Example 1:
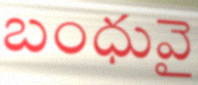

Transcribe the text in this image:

బంధువై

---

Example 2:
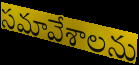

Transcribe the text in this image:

సమావేశాలను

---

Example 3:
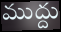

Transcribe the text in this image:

ముద్దు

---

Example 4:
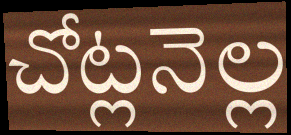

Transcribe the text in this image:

చోట్లనెల్ల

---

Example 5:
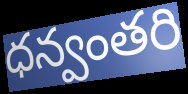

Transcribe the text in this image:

ధన్వంతరి